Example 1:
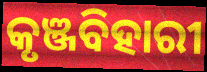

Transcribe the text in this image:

କୃଞ୍ଜବିହାରୀ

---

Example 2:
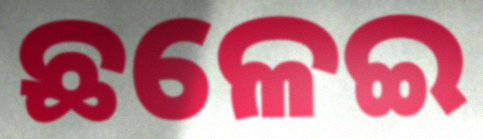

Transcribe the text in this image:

ଛଳେଇ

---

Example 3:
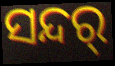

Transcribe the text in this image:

ସନ୍ଦର୍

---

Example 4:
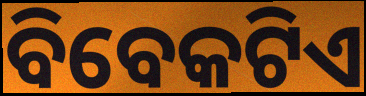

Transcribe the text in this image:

ବିବେକଟିଏ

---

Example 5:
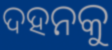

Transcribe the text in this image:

ଦହନକୁ